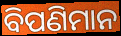
ବିପଣିମାନ